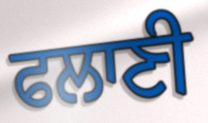
ਫਲਾਣੀ